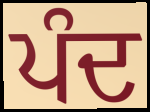
ਪੰਦ